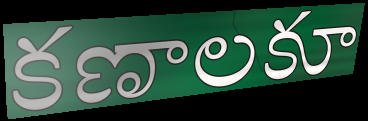
కణాలకూ